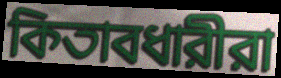
কিতাবধারীরা